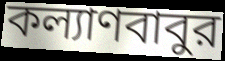
কল্যাণবাবুর